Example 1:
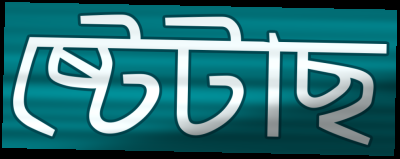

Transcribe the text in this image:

ষ্টেটাছ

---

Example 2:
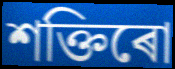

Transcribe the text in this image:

শক্তিৰো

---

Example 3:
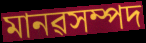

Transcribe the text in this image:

মানৱসম্পদ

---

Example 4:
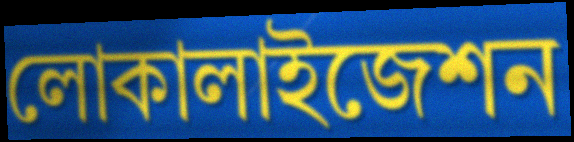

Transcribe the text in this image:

লোকালাইজেশন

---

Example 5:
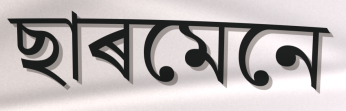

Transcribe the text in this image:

ছাৰমেনে